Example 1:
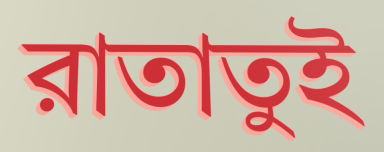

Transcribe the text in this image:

রাতাতুই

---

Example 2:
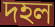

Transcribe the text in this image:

দহল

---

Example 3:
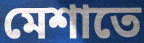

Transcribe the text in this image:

মেশাতে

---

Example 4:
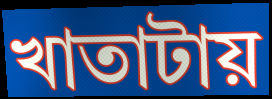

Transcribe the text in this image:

খাতাটায়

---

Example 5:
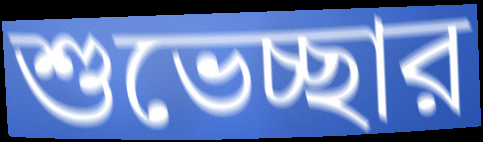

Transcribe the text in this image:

শুভেচ্ছার